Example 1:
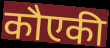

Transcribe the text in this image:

कौएकी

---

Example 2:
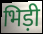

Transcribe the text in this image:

भिड़ी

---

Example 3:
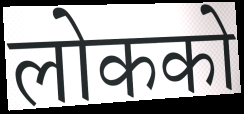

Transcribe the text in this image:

लोकको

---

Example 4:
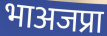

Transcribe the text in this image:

भाअजप्रा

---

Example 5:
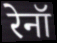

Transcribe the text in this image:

रेनॉ